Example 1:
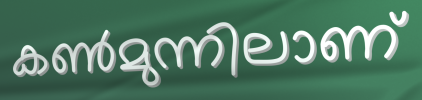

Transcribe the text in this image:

കൺമുന്നിലാണ്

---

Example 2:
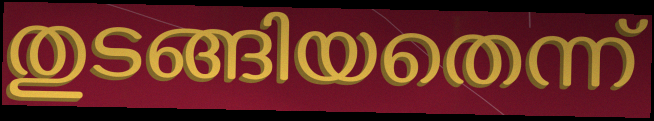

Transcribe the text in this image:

തുടങ്ങിയതെന്ന്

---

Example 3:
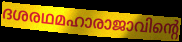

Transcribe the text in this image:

ദശരഥമഹാരാജാവിന്റെ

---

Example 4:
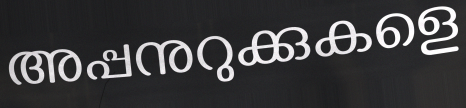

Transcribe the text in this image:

അപ്പനുറുക്കുകളെ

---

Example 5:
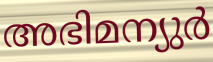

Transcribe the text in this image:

അഭിമന്യുർ